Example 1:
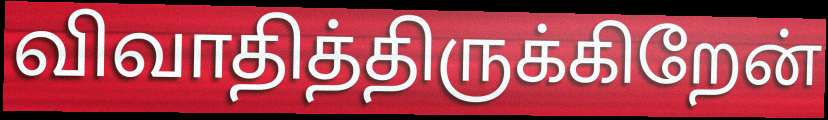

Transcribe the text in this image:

விவாதித்திருக்கிறேன்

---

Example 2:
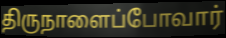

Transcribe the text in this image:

திருநாளைப்போவார்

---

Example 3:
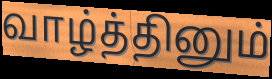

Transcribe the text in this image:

வாழ்த்தினும்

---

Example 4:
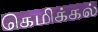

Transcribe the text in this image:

கெமிக்கல்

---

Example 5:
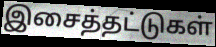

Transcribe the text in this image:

இசைத்தட்டுகள்